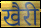
खैरी